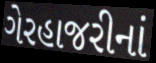
ગેરહાજરીનાં